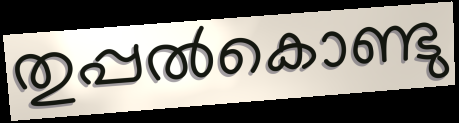
തുപ്പൽകൊണ്ടു